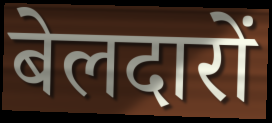
बेलदारों